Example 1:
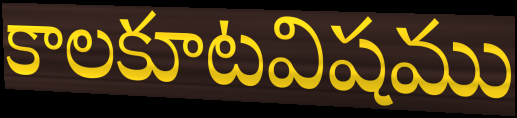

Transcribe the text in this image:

కాలకూటవిషము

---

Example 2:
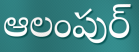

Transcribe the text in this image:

ఆలంపుర్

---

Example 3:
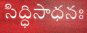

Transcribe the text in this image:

సిద్ధిసాధనః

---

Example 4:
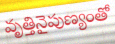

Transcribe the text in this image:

వృత్తినైపుణ్యంతో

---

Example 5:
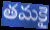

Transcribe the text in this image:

తమకై